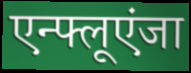
एन्फ्लूएंजा